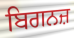
ਬਿਗਨਜ਼